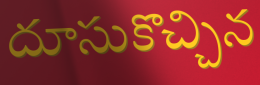
దూసుకొచ్చిన